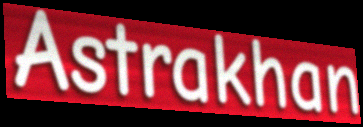
Astrakhan